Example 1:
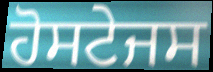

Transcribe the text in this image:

ਹੋਸਟੇਜਸ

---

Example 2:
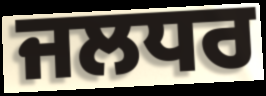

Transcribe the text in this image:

ਜਲਧਰ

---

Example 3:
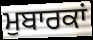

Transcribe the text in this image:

ਮੁਬਾਰਕਾਂ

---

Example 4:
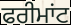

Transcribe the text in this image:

ਫਰੀਮਾਂਟ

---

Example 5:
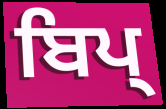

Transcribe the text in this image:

ਬਿਪ੍